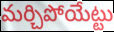
మర్చిపోయేట్టు